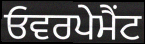
ਓਵਰਪੇਮੈਂਟ